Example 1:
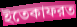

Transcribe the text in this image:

ইতেকাফরত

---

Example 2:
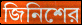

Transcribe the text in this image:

জিনিশের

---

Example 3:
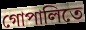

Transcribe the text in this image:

গোপালিতে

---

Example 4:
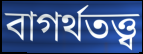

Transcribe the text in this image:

বাগর্থতত্ত্ব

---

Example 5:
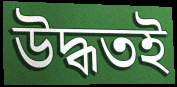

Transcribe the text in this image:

উদ্ধতই